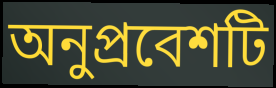
অনুপ্রবেশটি